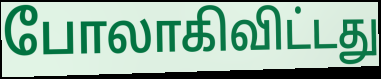
போலாகிவிட்டது